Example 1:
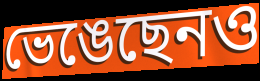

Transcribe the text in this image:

ভেঙেছেনও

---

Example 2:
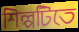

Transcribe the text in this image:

শিল্পটিতে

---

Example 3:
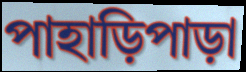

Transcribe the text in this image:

পাহাড়িপাড়া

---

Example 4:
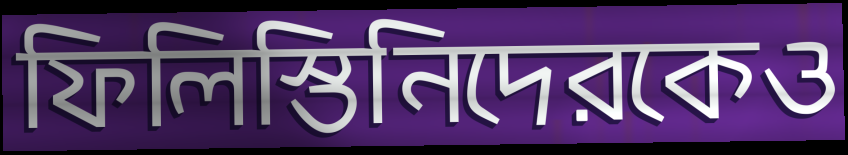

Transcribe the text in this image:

ফিলিস্তিনিদেরকেও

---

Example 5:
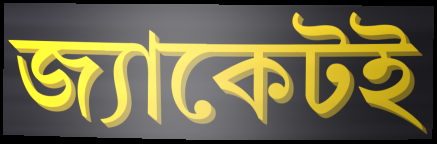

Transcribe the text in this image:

জ্যাকেটই